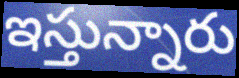
ఇస్తున్నారు